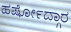
ಹರ್ಷೋದ್ಗಾರ